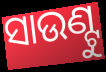
ସାଉଣ୍ଟୁ